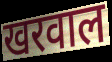
खरवाल